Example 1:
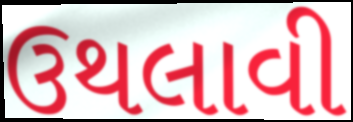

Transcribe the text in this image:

ઉથલાવી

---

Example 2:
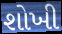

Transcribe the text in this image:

શોખી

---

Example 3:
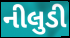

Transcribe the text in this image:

નીલુડી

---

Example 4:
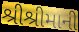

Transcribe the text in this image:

શ્રીશ્રીમાની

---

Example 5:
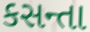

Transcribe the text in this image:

કસન્તા